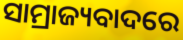
ସାମ୍ରାଜ୍ୟବାଦରେ